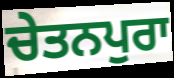
ਚੇਤਨਪੁਰਾ